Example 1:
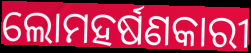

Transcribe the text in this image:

ଲୋମହର୍ଷଣକାରୀ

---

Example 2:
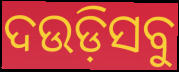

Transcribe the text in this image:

ଦଉଡ଼ିସବୁ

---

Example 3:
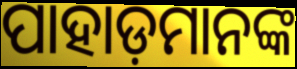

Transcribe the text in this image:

ପାହାଡ଼ମାନଙ୍କ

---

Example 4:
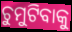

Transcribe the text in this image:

ଚୁମୁଟିବାକୁ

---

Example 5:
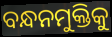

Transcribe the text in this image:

ବନ୍ଧନମୁକ୍ତିକୁ